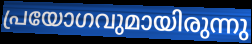
പ്രയോഗവുമായിരുന്നു